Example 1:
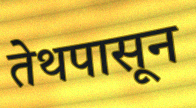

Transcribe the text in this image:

तेथपासून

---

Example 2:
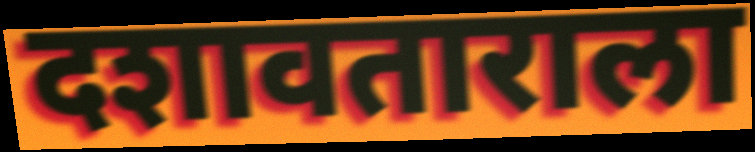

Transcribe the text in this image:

दशावताराला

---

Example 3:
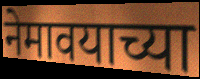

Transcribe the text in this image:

नेमावयाच्या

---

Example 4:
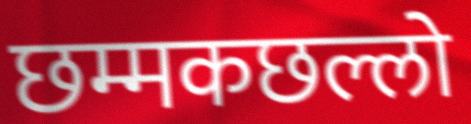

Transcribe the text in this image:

छम्मकछल्लो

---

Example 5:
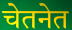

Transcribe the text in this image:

चेतनेत